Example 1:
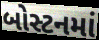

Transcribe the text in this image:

બોસ્ટનમાં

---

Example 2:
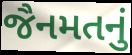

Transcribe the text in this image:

જૈનમતનું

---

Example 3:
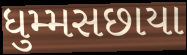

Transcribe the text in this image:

ધુમ્મસછાયા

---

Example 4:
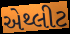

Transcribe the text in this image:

એથ્લીટ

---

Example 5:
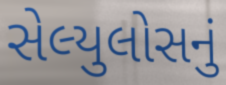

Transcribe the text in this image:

સેલ્યુલોસનું